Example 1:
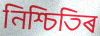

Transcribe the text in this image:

নিশ্চিতিৰ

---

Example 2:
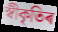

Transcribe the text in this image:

স্বীকৃতিৰ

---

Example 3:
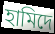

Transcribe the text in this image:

হামিদে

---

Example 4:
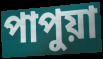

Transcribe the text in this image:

পাপুয়া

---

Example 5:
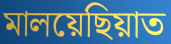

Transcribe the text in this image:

মালয়েছিয়াত